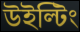
উইল্টিং